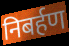
निबर्हण